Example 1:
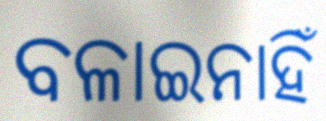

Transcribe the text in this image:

ବଳାଇନାହିଁ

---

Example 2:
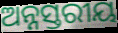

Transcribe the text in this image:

ଅନ୍ନସ୍ତରୀୟ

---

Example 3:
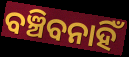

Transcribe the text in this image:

ବଞ୍ଚିବନାହିଁ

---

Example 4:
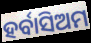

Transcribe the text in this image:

ହର୍ବାସିଅମ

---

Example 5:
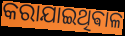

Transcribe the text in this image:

କରାଯାଇଥିଵାଳ